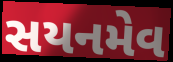
સયનમેવ